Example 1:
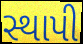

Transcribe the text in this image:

સ્થાપી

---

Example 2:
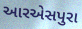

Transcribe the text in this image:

આરએસપુરા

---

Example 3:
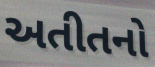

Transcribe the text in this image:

અતીતનો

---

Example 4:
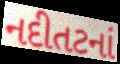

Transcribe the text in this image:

નદીતટનાં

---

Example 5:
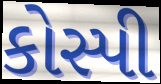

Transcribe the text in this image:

કોસ્પી